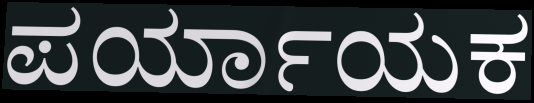
ಪರ್ಯಾಯಕ